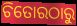
ଚିତୋରଠାରୁ